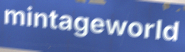
mintageworld